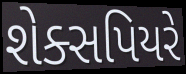
શેક્સપિયરે